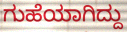
ಗುಹೆಯಾಗಿದ್ದು